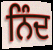
ਨਿੰਦ